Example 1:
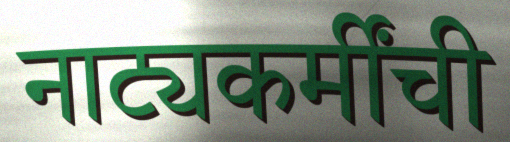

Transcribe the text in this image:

नाट्यकर्मींची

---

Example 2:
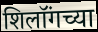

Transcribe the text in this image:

शिलॉंगच्या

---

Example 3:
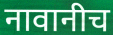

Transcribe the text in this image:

नावानीच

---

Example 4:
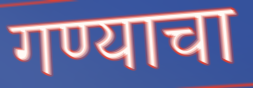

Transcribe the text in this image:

गण्याचा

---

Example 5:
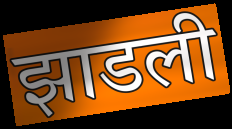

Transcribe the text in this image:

झाडली